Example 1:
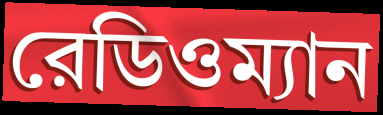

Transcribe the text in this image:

রেডিওম্যান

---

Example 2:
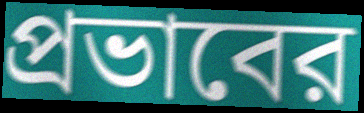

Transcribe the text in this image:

প্রভাবের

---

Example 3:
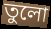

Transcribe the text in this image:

তুলো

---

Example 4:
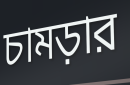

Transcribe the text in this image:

চামড়ার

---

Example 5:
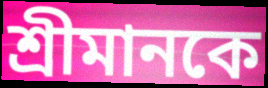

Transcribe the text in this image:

শ্রীমানকে